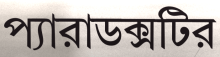
প্যারাডক্সটির